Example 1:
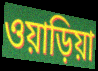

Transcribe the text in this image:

ওয়াড়িয়া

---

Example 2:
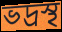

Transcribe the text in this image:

ভদ্রস্থ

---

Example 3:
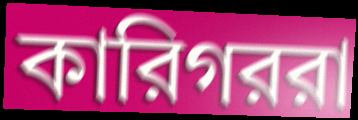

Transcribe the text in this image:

কারিগররা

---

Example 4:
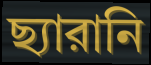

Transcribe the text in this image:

ছ্যারানি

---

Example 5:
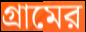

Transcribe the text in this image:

গ্রামের